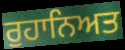
ਰੁਹਾਨਿਅਤ